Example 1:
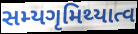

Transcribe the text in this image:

સમ્યગૃમિથ્યાત્વ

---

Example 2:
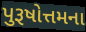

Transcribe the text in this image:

પુરૂષોત્તમના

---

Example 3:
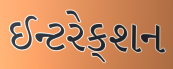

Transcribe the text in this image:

ઈન્ટરેક્‌શન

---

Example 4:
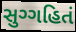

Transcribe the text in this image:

સુગ્ગહિતં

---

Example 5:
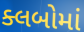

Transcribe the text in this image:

ક્લબોમાં